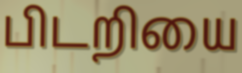
பிடறியை